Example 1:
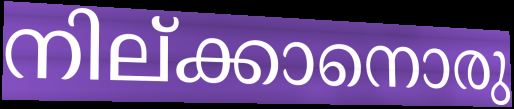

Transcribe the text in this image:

നില്ക്കാനൊരു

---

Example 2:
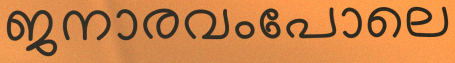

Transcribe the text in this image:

ജനാരവംപോലെ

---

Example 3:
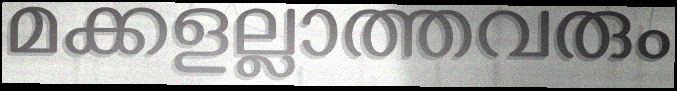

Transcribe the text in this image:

മക്കളല്ലാത്തവരും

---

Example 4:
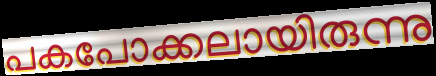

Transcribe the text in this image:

പകപോക്കലായിരുന്നു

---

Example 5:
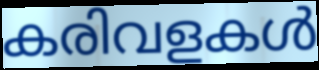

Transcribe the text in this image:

കരിവളകൾ